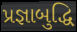
પ્રજ્ઞાબુદ્ધિ